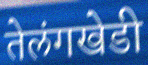
तेलंगखेडी